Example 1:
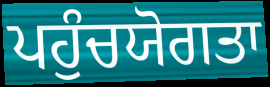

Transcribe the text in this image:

ਪਹੁੰਚਯੋਗਤਾ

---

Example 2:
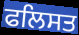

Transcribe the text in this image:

ਫਲਿਸਤ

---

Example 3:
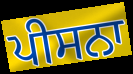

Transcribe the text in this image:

ਪੀਸਨਾ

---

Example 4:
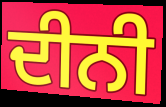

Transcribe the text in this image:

ਦੀਨੀ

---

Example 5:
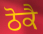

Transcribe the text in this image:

ਠੋਕੈ